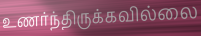
உணர்ந்திருக்கவில்லை